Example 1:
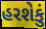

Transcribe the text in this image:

હરશેકું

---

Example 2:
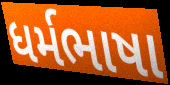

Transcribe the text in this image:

ધર્મભાષા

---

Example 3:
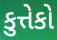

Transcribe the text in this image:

કુત્તેકો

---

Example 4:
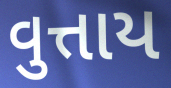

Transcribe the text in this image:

વુત્તાય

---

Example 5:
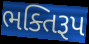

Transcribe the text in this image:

ભક્તિરૂપ